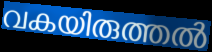
വകയിരുത്തൽ